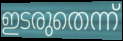
ഇടരുതെന്ന്